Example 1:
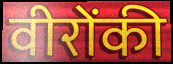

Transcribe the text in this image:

वीरोंकी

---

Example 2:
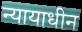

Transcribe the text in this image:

न्यायाधीन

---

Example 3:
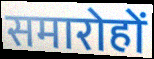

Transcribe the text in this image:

समारोहों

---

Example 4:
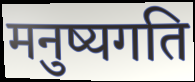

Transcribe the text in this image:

मनुष्यगति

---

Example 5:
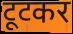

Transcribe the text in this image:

टूटकर